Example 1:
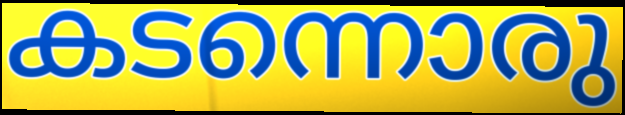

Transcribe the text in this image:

കടന്നൊരു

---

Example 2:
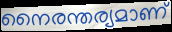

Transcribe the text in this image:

നൈരന്തര്യമാണ്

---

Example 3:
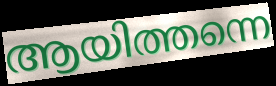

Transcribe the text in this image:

ആയിത്തന്നെ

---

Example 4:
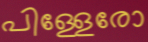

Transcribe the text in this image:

പിള്ളേരോ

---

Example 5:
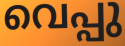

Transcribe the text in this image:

വെപ്പു